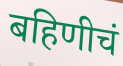
बहिणीचं